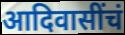
आदिवासींचं